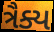
ત્રૈક્ય